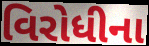
વિરોધીના